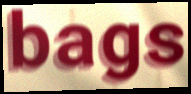
bags